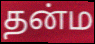
தன்ம